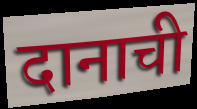
दानाची